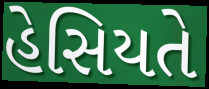
હેસિયતે